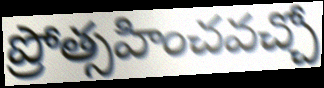
ప్రోత్సహించవచ్చో